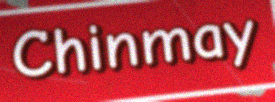
Chinmay